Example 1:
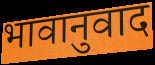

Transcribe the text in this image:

भावानुवाद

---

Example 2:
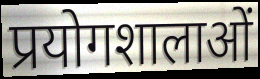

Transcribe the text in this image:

प्रयोगशालाओं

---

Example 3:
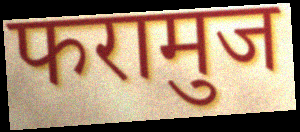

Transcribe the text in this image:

फरामुज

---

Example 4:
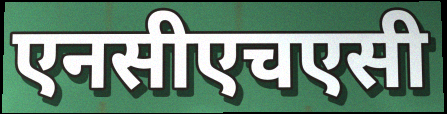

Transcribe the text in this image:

एनसीएचएसी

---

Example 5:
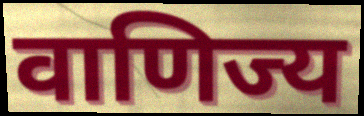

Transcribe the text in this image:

वाणिज्य